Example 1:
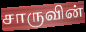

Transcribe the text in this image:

சாருவின்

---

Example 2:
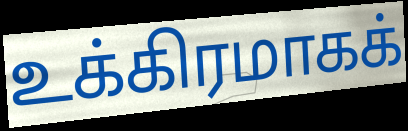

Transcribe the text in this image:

உக்கிரமாகக்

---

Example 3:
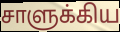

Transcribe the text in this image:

சாளுக்கிய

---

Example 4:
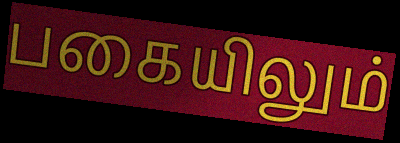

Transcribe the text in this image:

பகையிலும்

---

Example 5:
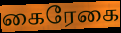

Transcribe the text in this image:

கைரேகை